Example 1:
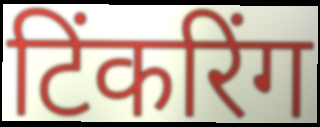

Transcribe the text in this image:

टिंकरिंग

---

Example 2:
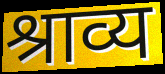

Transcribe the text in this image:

श्राव्य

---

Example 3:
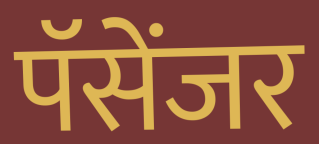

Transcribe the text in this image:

पॅसेंजर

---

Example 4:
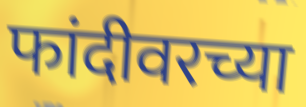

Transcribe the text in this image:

फांदीवरच्या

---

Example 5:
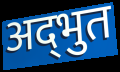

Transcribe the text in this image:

अद्‍भुत